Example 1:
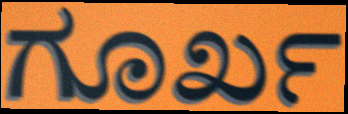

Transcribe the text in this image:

ಗೂರ್ಖ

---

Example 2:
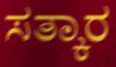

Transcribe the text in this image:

ಸತ್ಕಾರ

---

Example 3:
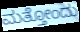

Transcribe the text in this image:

ಮತ್ತೋಂದು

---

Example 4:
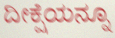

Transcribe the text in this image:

ದೀಕ್ಷೆಯನ್ನೂ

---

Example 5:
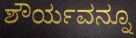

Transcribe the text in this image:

ಶೌರ್ಯವನ್ನೂ